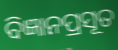
ବିଜ୍ଞାନପ୍ରସୂତ